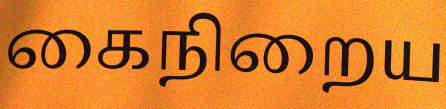
கைநிறைய